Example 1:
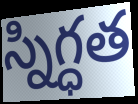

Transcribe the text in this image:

స్నిగ్ధత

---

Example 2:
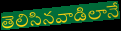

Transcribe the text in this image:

తెలిసినవాడిలానే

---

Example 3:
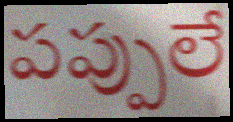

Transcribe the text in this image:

పప్పులే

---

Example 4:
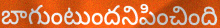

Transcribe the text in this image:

బాగుంటుందనిపించింది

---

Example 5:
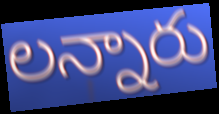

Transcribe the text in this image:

లన్నారు